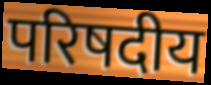
परिषदीय